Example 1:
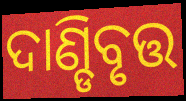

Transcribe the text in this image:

ଦାଣ୍ଡିବୃତ୍ତ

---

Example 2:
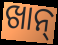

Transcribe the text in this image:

ଖାନ୍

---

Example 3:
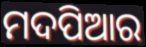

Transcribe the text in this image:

ମଦପିଆର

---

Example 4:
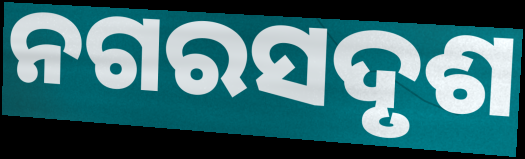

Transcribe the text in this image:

ନଗରସଦୃଶ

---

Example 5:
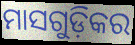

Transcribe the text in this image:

ମାସଗୁଡ଼ିକର